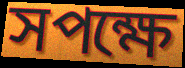
সপক্ষে